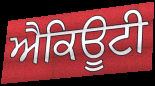
ਐਕਿਊਟੀ